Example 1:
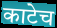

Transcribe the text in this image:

काटेच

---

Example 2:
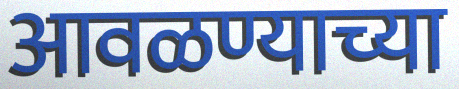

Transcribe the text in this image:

आवळण्याच्या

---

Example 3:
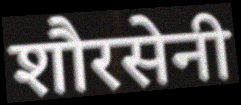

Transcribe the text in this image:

शौरसेनी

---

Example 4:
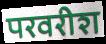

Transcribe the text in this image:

परवरीश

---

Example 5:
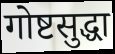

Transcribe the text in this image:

गोष्टसुद्धा